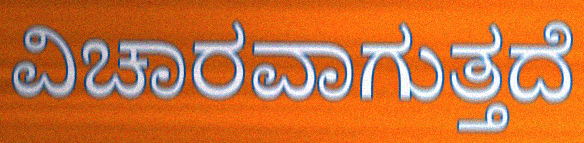
ವಿಚಾರವಾಗುತ್ತದೆ